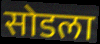
सोडला